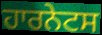
ਹਾਰਨੇਟਸ